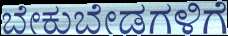
ಬೇಕುಬೇಡಗಳಿಗೆ